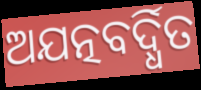
ଅଯତ୍ନବର୍ଦ୍ଧିତ